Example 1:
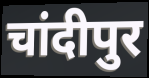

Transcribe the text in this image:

चांदीपुर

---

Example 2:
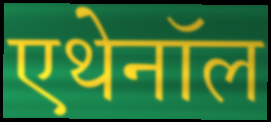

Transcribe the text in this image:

एथेनॉल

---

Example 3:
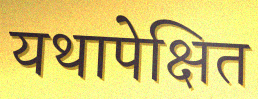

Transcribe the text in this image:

यथापेक्षित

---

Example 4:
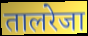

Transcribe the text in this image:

तालरेजा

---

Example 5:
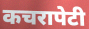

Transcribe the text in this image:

कचरापेटी